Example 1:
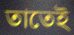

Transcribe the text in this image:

তাতেই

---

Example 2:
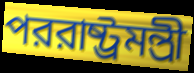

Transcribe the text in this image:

পররাষ্ট্রমন্ত্রী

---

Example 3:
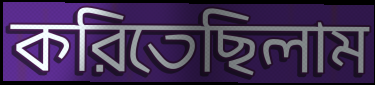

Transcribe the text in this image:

করিতেছিলাম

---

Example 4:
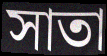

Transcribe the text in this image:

সাতা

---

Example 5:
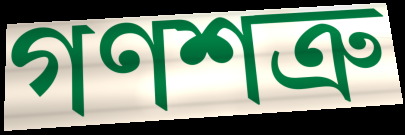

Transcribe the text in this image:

গণশত্রু